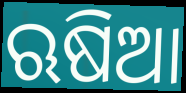
ଋଷିଆ